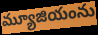
మ్యూజియంను